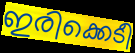
ഇരിക്കെടീ